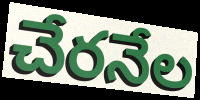
చేరనేల